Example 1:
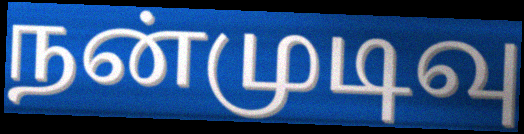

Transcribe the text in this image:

நன்முடிவு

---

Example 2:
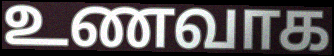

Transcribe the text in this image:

உணவாக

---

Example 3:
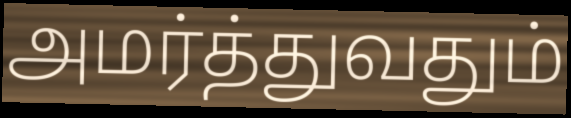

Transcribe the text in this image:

அமர்த்துவதும்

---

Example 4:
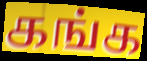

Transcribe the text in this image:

கங்க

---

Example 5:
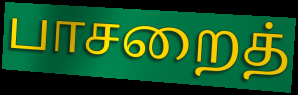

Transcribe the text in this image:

பாசறைத்